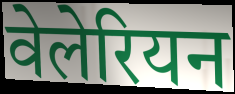
वेलेरियन